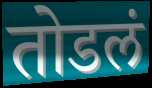
तोडलं